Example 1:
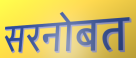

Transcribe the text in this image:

सरनोबत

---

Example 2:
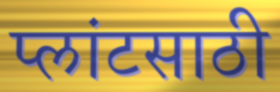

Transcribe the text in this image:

प्लांटसाठी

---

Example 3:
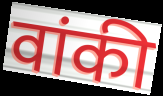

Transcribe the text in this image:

वांकी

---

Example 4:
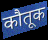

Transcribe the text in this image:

कौतूक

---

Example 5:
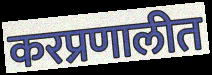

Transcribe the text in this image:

करप्रणालीत